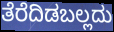
ತೆರೆದಿಡಬಲ್ಲದು